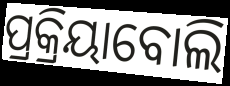
ପ୍ରକ୍ରିୟାବୋଲି